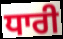
ਧਾਰੀ